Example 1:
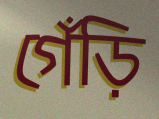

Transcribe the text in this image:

গেঁড়ি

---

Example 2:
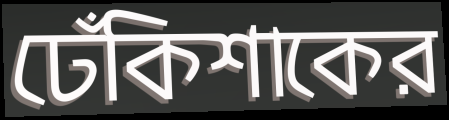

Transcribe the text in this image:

ঢেঁকিশাকের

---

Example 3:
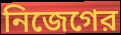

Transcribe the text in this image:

নিজেগের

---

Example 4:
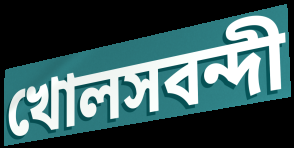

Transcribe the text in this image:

খোলসবন্দী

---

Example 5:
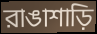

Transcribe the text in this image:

রাঙাশাড়ি